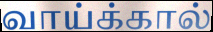
வாய்க்கால்